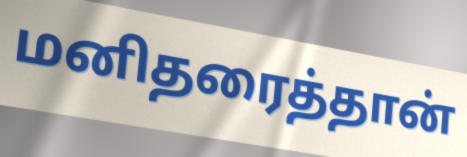
மனிதரைத்தான்